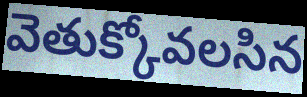
వెతుక్కోవలసిన